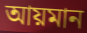
আয়মান